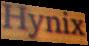
Hynix